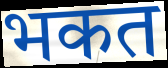
भकत